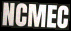
NCMEC